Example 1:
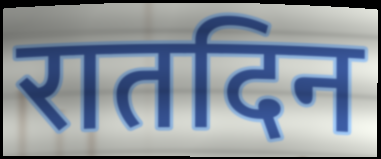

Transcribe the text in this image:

रातदिन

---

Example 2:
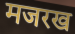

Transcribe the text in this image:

मजरख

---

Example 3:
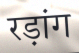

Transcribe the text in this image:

रड़ांग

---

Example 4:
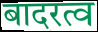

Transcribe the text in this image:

बादरत्व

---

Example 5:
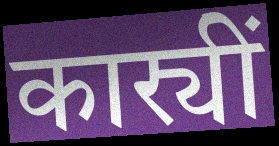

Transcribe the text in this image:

कार्र्यों